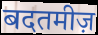
बदतमीज़